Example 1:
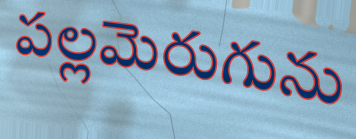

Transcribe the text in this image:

పల్లమెరుగును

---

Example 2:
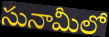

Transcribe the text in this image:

సునామీలో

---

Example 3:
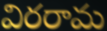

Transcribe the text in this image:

విరరామ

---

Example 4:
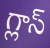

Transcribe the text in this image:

గ్లాస్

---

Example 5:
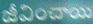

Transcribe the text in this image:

జీవించాయి